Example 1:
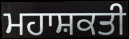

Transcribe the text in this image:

ਮਹਾਸ਼ਕਤੀ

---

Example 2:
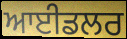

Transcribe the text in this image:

ਆਈਡਲਰ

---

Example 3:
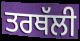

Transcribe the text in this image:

ਤਰਥੱਲੀ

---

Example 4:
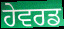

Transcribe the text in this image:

ਹੇਵਰਡ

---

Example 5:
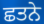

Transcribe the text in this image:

ਛਤਨੇ